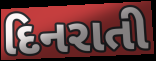
દિનરાતી